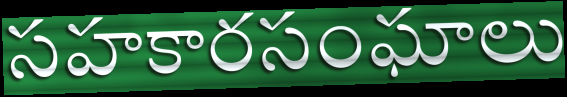
సహకారసంఘాలు